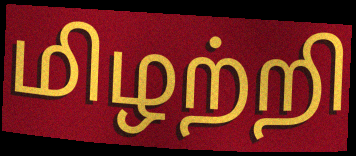
மிழற்றி